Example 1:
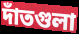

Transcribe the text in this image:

দাঁতগুলা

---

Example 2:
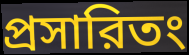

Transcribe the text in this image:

প্রসারিতং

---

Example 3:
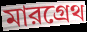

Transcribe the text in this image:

মারগ্রেথ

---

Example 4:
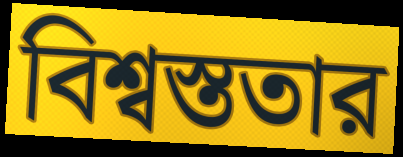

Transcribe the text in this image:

বিশ্বস্ততার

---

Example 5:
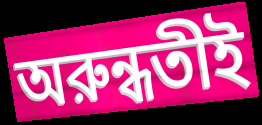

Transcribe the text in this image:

অরুন্ধতীই